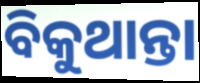
ବିକୁଥାନ୍ତା